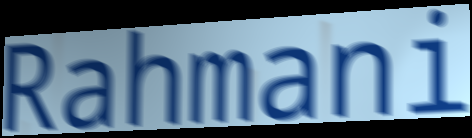
Rahmani